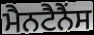
ਮੈਨਟੈਨੈਂਸ